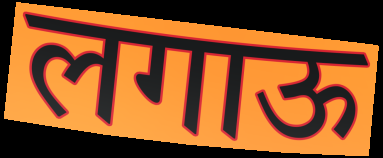
लगाऊ